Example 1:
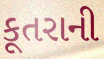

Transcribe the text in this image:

કૂતરાની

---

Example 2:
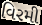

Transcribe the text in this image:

વિરમી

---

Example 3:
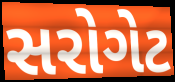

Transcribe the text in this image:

સરોગેટ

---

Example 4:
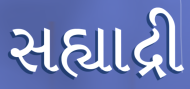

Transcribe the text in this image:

સહ્યાદ્રી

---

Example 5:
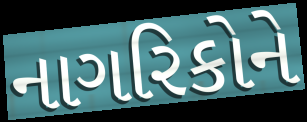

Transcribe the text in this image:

નાગરિકોને